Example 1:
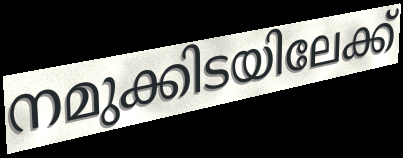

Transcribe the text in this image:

നമുക്കിടയിലേക്ക്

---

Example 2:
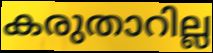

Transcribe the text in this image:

കരുതാറില്ല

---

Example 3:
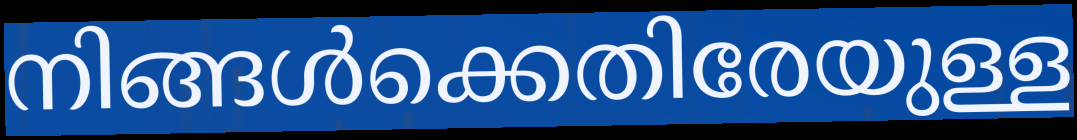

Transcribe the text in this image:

നിങ്ങൾക്കെതിരേയുള്ള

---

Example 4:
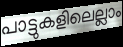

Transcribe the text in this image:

പാട്ടുകളിലെല്ലാം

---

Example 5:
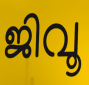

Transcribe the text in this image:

ജിവൂ